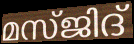
മസ്ജിദ്